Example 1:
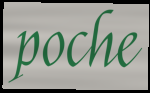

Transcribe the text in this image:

poche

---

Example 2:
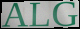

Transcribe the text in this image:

ALG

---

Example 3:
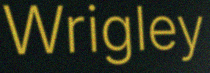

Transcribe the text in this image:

Wrigley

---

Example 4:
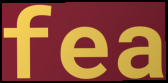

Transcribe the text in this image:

fea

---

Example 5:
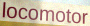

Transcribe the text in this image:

locomotor